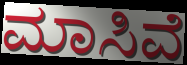
ಮಾಸಿವೆ